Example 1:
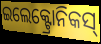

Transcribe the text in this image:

ଇଲେକ୍ଟ୍ରୋନିକସ୍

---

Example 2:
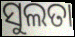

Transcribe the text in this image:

ସୁଲତା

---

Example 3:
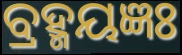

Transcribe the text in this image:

ବ୍ରହ୍ମୟଜ୍ଞଃ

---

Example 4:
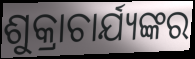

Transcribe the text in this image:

ଶୁକ୍ରାଚାର୍ଯ୍ୟଙ୍କର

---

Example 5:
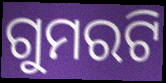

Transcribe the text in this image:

ଗୁମରଟି